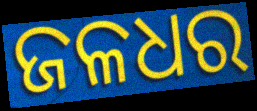
ଜଳଧର